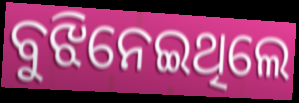
ବୁଝିନେଇଥିଲେ